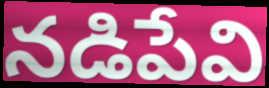
నడిపేవి